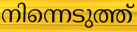
നിന്നെടുത്ത്